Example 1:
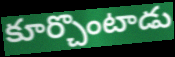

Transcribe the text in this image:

కూర్చొంటాడు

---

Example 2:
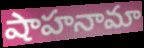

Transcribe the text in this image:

షాహనామా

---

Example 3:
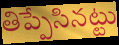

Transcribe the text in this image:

తిప్పేసినట్టు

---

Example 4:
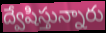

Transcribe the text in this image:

ద్వేషిస్తున్నారు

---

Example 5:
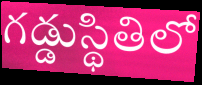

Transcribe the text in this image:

గడ్డుస్థితిలో